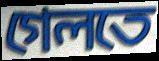
গেলতে